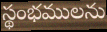
స్థంభములను